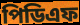
পিডিএফ